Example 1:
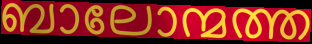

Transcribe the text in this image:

ബാലോന്മത്ത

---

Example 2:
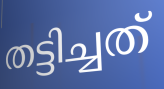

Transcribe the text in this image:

തട്ടിച്ചത്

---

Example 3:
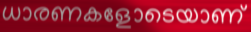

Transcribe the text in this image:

ധാരണകളോടെയാണ്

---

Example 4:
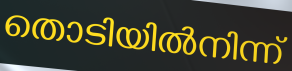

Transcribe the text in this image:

തൊടിയിൽനിന്ന്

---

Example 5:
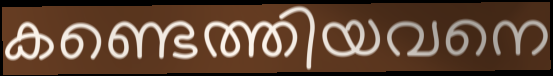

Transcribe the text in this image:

കണ്ടെത്തിയവനെ